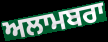
ਅਲਾਮਬਰਾ